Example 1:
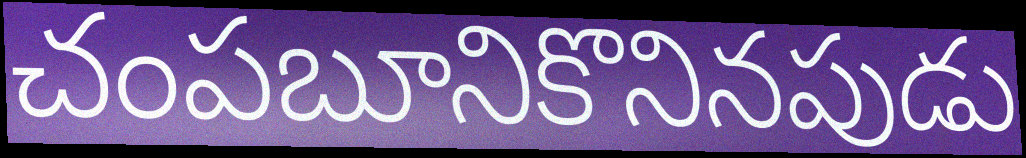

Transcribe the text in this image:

చంపబూనికొనినపుడు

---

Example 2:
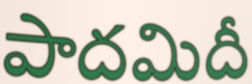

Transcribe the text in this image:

పాదమిదీ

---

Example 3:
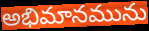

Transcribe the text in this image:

అభిమానమును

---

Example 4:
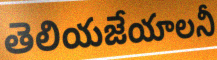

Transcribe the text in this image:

తెలియజేయాలనీ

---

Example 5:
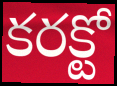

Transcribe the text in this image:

కరక్టో